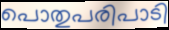
പൊതുപരിപാടി